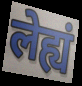
लेह्यं